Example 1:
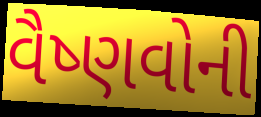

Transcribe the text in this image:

વૈષ્ણવોની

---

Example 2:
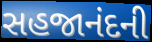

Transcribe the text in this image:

સહજાનંદની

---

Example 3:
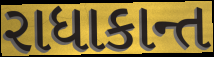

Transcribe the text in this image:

રાધાકાન્ત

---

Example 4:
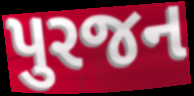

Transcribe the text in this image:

પુરજન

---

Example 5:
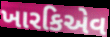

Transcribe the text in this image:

ખારકિએવ